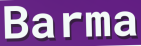
Barma